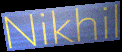
Nikhil